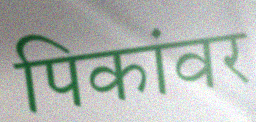
पिकांवर